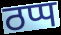
ठप्प